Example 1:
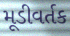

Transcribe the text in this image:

મૂડીવર્તક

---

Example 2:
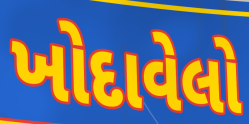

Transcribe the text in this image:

ખોદાવેલો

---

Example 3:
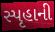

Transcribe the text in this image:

સ્પૃહાની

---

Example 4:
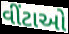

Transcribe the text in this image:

વીંટાઓ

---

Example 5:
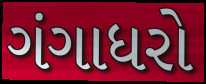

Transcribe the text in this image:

ગંગાધરો